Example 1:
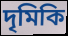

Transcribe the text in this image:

দৃমিকি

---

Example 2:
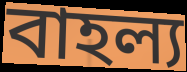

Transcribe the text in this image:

বাহল্য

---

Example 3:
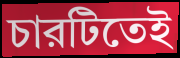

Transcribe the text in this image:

চারটিতেই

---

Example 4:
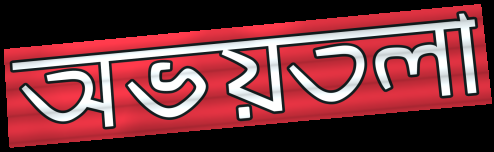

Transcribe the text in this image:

অভয়তলা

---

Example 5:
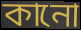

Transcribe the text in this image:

কানো